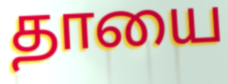
தாயை